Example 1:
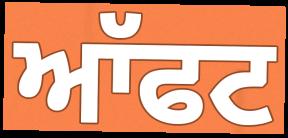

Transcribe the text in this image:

ਆੱਫਟ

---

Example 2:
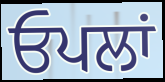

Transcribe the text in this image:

ਓਪਲਾਂ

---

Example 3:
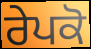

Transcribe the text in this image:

ਰੇਪਕੋ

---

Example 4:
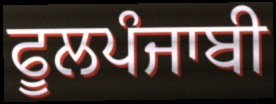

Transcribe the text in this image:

ਫੂਲਪੰਜਾਬੀ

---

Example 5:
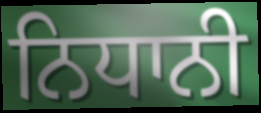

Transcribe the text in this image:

ਨਿਧਾਨੀ